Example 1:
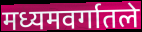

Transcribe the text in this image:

मध्यमवर्गातले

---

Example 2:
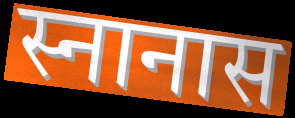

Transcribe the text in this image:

स्नानास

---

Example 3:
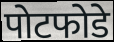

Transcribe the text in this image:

पोटफोडे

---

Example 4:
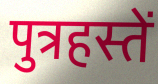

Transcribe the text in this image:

पुत्रहस्तें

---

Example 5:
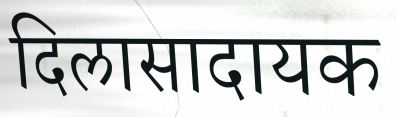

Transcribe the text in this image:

दिलासादायक